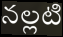
నల్లటి